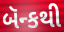
બૅન્કથી